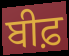
ਬੀਫ਼